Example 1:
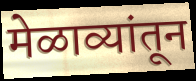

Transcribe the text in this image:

मेळाव्यांतून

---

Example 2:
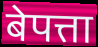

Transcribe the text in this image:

बेपत्ता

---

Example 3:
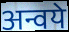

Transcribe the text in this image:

अन्वये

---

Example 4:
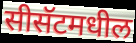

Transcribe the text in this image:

सीसॅटमधील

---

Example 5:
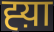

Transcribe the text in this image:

ह्य़ा